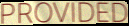
PROVIDED